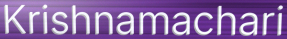
Krishnamachari